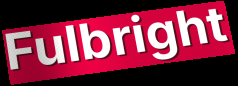
Fulbright